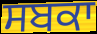
ਸਬਕਾ